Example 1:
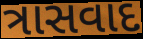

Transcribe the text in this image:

ત્રાસવાદ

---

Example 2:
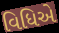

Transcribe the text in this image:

વિધિએ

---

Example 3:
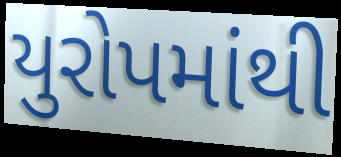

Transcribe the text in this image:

યુરોપમાંથી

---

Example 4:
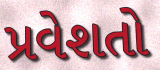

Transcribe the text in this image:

પ્રવેશતો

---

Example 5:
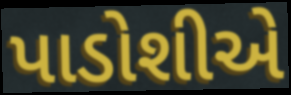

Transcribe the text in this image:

પાડોશીએ